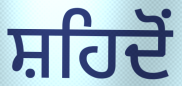
ਸ਼ਹਿਦੋਂ